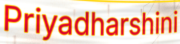
Priyadharshini